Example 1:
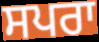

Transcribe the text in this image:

ਸਪਰਾ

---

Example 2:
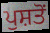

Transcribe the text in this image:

ਪੁਸ਼ਤੋਂ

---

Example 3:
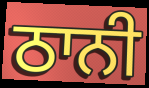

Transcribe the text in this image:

ਠਾਨੀ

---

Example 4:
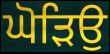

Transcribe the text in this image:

ਘੋੜਿਉ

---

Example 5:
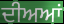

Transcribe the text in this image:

ਦੀਅਆਂ